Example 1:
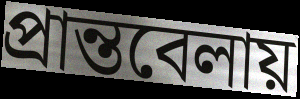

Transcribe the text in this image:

প্রান্তবেলায়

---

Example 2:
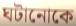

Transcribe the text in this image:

ঘটানোকে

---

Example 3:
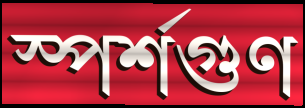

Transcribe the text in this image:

স্পর্শগুণ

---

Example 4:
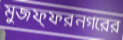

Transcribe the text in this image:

মুজফ্ফরনগরের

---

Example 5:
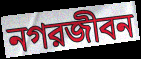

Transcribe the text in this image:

নগরজীবন